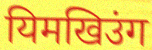
यिमखिउंग